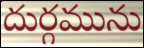
దుర్గమును